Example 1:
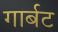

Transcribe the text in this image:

गार्बट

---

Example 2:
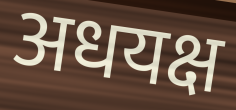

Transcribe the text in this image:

अधयक्ष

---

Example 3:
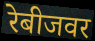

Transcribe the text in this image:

रेबीजवर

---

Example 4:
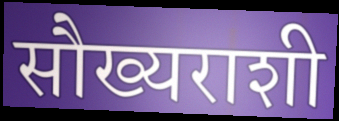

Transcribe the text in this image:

सौख्यराशी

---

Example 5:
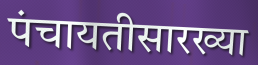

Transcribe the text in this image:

पंचायतीसारख्या